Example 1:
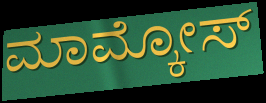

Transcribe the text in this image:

ಮಾಮ್ಕೋಸ್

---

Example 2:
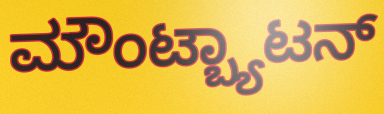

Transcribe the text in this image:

ಮೌಂಟ್ಬ್ಯಾಟನ್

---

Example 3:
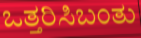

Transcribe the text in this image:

ಒತ್ತರಿಸಿಬಂತು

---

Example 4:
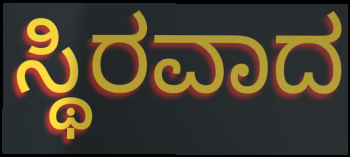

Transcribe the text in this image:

ಸ್ಥಿರವಾದ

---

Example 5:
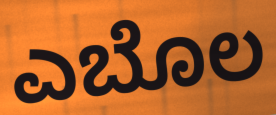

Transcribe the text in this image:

ಎಬೊಲ